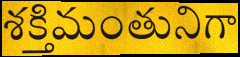
శక్తిమంతునిగా